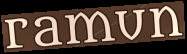
ramun